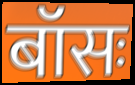
बॉसः